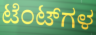
ಟೆಂಟ್‌ಗಳ